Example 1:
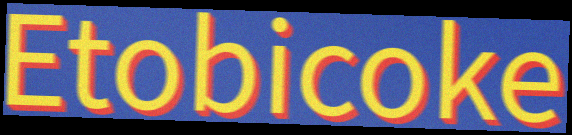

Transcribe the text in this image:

Etobicoke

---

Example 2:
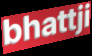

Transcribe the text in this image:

bhattji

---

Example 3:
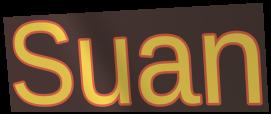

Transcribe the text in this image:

Suan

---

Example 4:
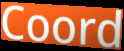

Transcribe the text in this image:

Coord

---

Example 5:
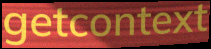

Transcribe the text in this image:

getcontext